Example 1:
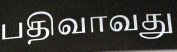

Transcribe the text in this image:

பதிவாவது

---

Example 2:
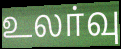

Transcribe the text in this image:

உலர்வு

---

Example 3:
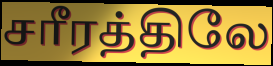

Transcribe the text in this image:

சரீரத்திலே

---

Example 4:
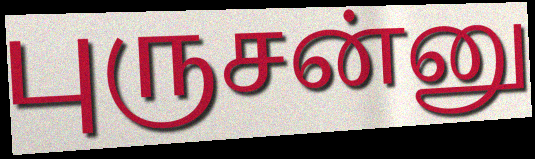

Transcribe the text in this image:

புருசன்னு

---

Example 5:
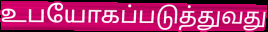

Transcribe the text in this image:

உபயோகப்படுத்துவது